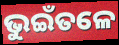
ଭୁଇଁତଳେ